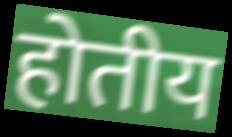
होतीय